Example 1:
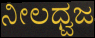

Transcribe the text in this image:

ನೀಲಧ್ವಜ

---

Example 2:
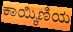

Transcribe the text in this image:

ಕಾಯ್ಕಿಣಿಯ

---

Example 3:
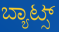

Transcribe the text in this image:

ಬ್ಯಾಟ್ಸ್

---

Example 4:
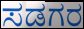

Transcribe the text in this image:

ಸಡಗರ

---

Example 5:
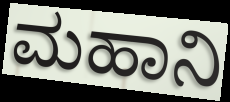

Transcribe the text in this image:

ಮಹಾನಿ